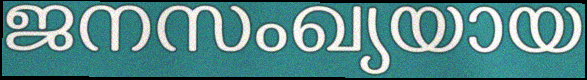
ജനസംഖ്യയായ